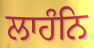
ਲਾਹੰਨਿ